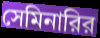
সেমিনারির